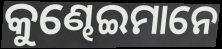
କୁଣ୍ଢେଇମାନେ